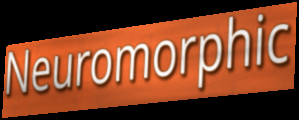
Neuromorphic